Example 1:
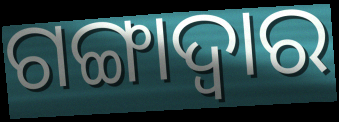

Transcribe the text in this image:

ଗଙ୍ଗାଦ୍ୱାର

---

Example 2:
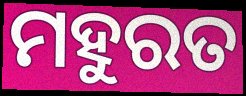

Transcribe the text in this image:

ମହୁରତ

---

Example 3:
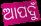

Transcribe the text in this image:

ଆପଦୁଁ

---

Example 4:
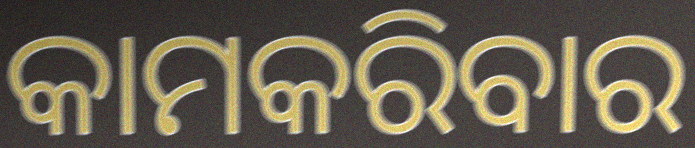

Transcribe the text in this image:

କାମକରିବାର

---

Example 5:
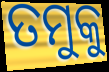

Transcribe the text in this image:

ତମୁକୁ